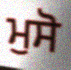
ਮੁਸੋ